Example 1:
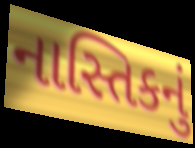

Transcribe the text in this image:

નાસ્તિકનું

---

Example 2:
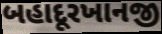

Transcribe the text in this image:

બહાદૂરખાનજી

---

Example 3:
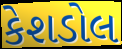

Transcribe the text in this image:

કેશડોલ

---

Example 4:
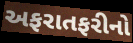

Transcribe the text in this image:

અફરાતફરીનો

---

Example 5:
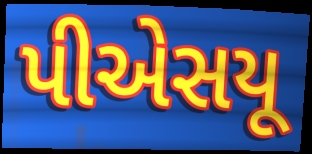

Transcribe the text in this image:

પીએસયૂ